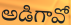
అడిగావో